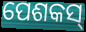
ପେଶକସ୍